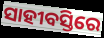
ସାହୀବସ୍ତିରେ